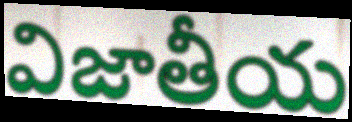
విజాతీయ